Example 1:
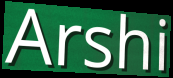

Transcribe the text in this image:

Arshi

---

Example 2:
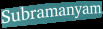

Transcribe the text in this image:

Subramanyam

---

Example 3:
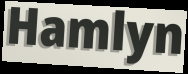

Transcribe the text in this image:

Hamlyn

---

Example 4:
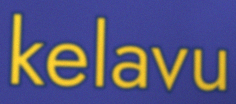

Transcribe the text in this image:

kelavu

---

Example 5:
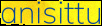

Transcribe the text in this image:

anisittu